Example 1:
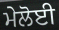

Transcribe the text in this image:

ਮੇਲੋਈ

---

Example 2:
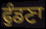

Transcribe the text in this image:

ਫੁੰਡਣਾ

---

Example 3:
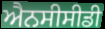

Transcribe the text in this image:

ਐਨਸੀਸੀਡੀ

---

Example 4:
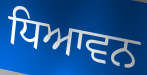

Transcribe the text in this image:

ਧਿਆਵਨ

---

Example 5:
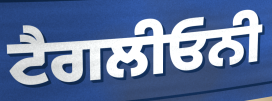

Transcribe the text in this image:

ਟੈਗਲੀਓਨੀ